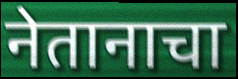
नेतानाचा